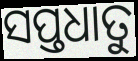
ସପ୍ତଧାତୁ